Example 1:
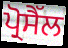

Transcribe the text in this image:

ਪ੍ਰੋਸੈੱਲ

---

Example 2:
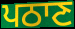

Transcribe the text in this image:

ਪਠਾਣ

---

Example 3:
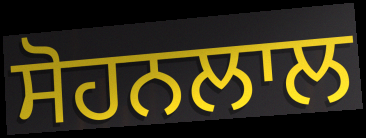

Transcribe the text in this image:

ਸੋਹਨਲਾਲ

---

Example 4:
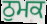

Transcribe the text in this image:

ਠੁਮਕ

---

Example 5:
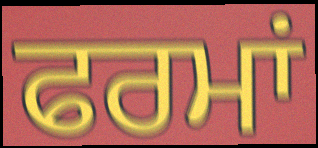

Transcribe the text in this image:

ਫਰਮਾਂ